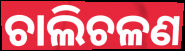
ଚାଲିଚଳଣ